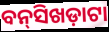
ବନ୍‌ସିଖଡ଼ାଟା